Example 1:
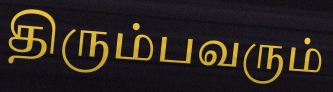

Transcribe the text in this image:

திரும்பவரும்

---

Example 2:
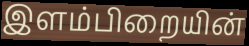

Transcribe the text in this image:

இளம்பிறையின்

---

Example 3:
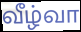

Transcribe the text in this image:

வீழ்வா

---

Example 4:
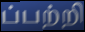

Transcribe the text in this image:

ப்பற்றி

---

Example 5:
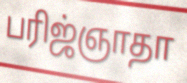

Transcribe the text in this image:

பரிஜ்ஞாதா